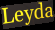
Leyda